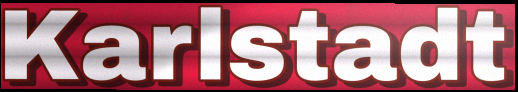
Karlstadt